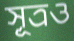
সূত্রও